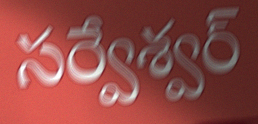
సర్వేశ్వర్